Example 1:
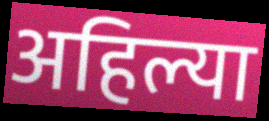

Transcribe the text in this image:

अहिल्या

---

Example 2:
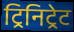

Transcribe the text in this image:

ट्रिनिट्रेट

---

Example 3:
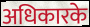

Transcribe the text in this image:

अधिकारके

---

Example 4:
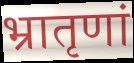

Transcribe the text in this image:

भ्रातृणां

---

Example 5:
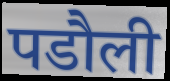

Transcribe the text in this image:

पडौली